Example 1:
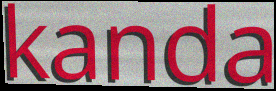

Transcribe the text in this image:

kanda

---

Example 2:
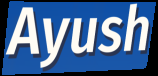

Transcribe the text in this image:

Ayush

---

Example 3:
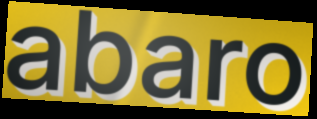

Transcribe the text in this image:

abaro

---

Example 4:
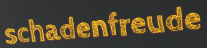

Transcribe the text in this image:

schadenfreude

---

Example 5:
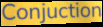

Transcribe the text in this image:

Conjuction